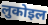
लुकोइल